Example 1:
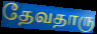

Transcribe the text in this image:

தேவதாரு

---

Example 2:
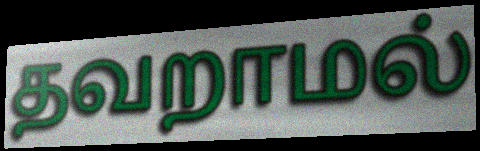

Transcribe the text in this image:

தவறாமல்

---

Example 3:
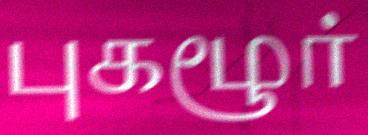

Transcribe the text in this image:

புகழூர்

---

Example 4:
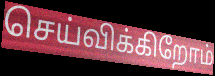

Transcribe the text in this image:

செய்விக்கிறோம்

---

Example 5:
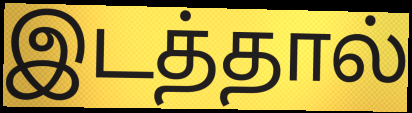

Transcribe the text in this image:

இடத்தால்